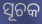
ସୂଚକ